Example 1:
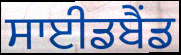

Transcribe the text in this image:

ਸਾਈਡਬੈਂਡ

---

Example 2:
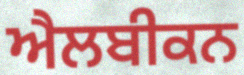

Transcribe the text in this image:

ਐਲਬੀਕਨ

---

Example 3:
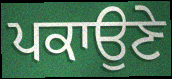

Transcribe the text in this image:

ਪਕਾਉਣੇ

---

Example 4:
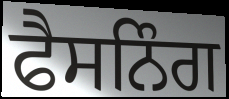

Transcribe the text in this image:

ਫੈਸਨਿੰਗ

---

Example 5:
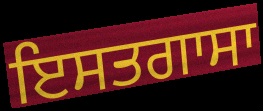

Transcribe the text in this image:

ਇਸਤਗਾਸਾ